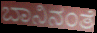
ಬಾನಿನಂತೆ